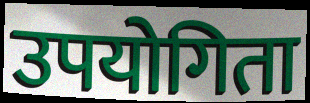
उपयोगिता